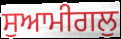
ਸੁਆਮੀਗਲੁ